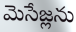
మెసేజ్లను